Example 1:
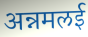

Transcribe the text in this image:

अन्नमलई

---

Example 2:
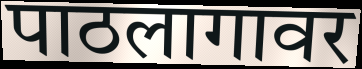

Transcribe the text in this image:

पाठलागावर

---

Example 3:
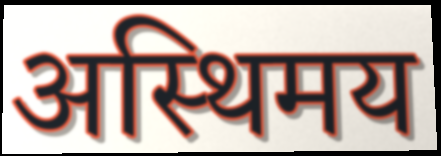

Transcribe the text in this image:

अस्थिमय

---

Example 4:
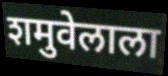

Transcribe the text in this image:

शमुवेलाला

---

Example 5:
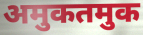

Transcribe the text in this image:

अमुकतमुक